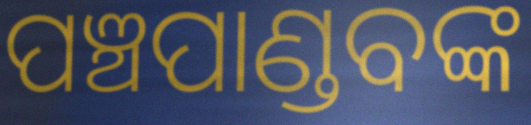
ପଞ୍ଚପାଣ୍ଡବଙ୍କ